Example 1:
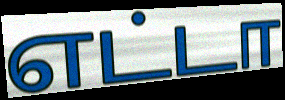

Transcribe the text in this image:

எட்டா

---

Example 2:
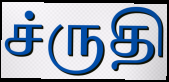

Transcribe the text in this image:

ச்ருதி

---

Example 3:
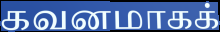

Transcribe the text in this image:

கவனமாகக்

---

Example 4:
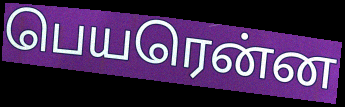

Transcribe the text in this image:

பெயரென்ன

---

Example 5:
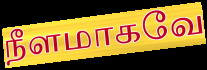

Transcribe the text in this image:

நீளமாகவே